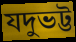
যদুভট্ট